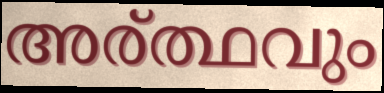
അര്ത്ഥവും